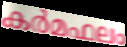
കർമഫലം